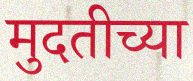
मुदतीच्या